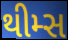
થીમ્સ